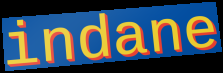
indane